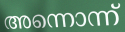
അന്നൊന്ന്